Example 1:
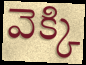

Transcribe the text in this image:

వెక్కి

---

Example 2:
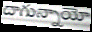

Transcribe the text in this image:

దాగున్నాయో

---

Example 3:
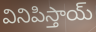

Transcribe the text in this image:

వినిపిస్తాయ్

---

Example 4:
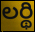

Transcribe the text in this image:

లర్థి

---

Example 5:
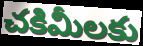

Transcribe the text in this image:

చకిమీలకు